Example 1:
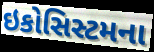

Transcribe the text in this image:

ઇકોસિસ્ટમના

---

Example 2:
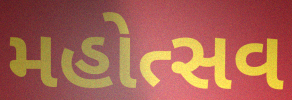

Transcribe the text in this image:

મહોત્સવ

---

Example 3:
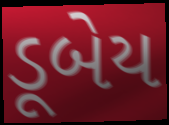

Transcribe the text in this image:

ડૂબેય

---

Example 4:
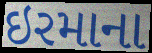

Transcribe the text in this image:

ઇરમાના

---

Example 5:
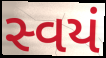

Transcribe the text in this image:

સ્વયં